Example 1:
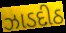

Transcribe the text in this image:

ઝાડદીઠ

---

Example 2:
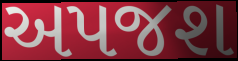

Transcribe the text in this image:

અપજશ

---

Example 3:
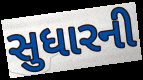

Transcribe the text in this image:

સુધારની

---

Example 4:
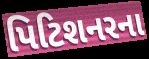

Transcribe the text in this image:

પિટિશનરના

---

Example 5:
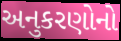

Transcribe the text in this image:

અનુકરણોનો